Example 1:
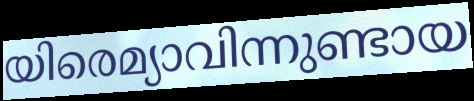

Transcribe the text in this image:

യിരെമ്യാവിന്നുണ്ടായ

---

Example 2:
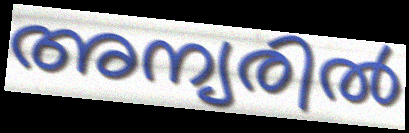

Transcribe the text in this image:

അന്യരിൽ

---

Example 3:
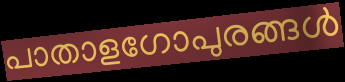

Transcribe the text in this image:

പാതാളഗോപുരങ്ങൾ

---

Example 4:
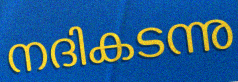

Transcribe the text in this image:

നദികടന്നു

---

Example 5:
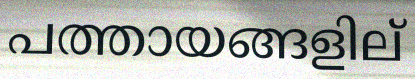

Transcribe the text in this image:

പത്തായങ്ങളില്